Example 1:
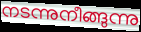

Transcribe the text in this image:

നടന്നുനീങ്ങുന്നു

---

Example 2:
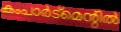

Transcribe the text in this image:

കംപാർട്മെന്റിൽ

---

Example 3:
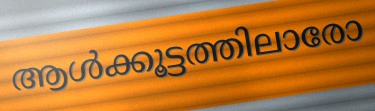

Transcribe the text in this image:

ആൾക്കൂട്ടത്തിലാരോ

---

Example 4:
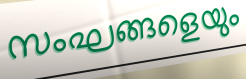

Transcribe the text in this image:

സംഘങ്ങളെയും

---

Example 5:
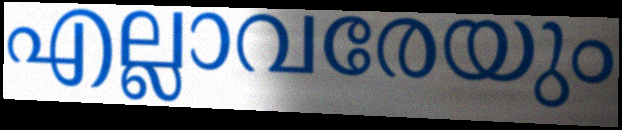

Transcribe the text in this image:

എല്ലാവരേയും